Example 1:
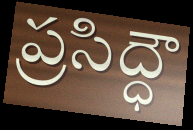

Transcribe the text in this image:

ప్రసిద్ధౌ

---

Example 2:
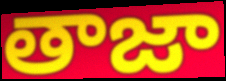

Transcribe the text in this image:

తాజా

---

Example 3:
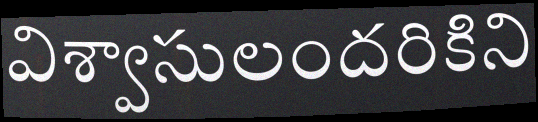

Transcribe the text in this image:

విశ్వాసులందరికిని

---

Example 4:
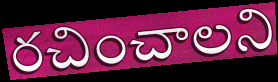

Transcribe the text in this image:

రచించాలని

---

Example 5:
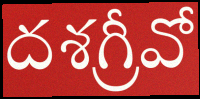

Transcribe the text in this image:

దశగ్రీవో